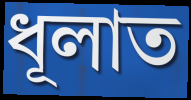
ধূলাত